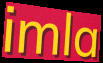
imla